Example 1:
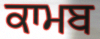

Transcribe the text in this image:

ਕਾਮਬ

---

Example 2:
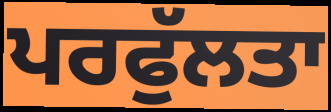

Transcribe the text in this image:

ਪਰਫੁੱਲਤਾ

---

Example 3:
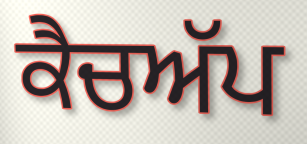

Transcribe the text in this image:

ਕੈਚਅੱਪ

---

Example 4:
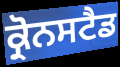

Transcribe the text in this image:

ਕ੍ਰੋਨਸਟੈਡ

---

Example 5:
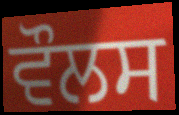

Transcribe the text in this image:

ਵੌਲਸ